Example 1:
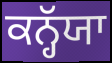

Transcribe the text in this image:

ਕਨ੍ਹੱਯਾ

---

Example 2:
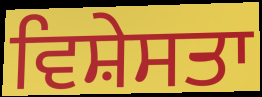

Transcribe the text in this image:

ਵਿਸ਼ੇਸਤਾ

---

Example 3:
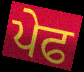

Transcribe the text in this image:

ਪੇਫ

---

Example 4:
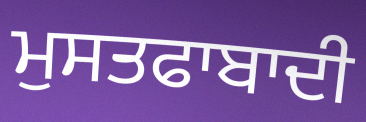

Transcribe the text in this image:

ਮੁਸਤਫਾਬਾਦੀ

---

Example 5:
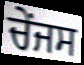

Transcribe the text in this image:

ਚੇਂਜਸ